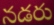
నడరు